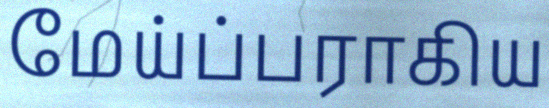
மேய்ப்பராகிய